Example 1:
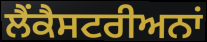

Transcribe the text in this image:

ਲੈਂਕੈਸਟਰੀਅਨਾਂ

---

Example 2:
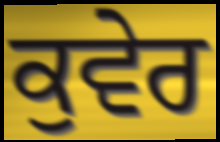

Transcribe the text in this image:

ਕੁਵੇਰ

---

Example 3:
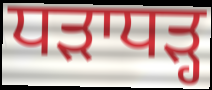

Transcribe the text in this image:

ਧੜਾਧੜ੍ਹ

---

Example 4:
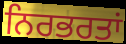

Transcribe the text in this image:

ਨਿਰਭਰਤਾਂ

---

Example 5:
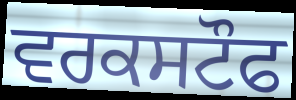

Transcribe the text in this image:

ਵਰਕਸਟੌਫ